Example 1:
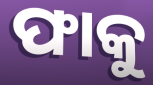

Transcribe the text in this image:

ଫାକୁ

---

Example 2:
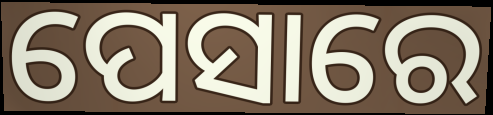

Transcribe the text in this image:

ପେସାରେ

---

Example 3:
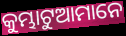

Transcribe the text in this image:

କୁମ୍ଭାଟୁଆମାନେ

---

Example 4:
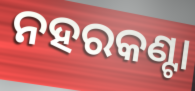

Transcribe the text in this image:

ନହରକଣ୍ଟା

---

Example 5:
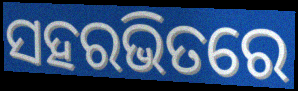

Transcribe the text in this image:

ସହରଭିତରେ